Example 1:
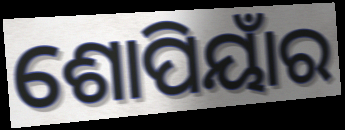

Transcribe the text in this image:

ଶୋପିୟାଁର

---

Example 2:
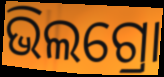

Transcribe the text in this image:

ଭିଲଗ୍ରୋ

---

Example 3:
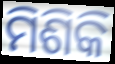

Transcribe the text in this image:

ମିଶିକି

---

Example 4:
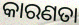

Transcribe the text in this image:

କାରଣତା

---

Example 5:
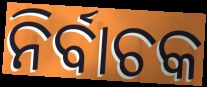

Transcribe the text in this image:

ନିର୍ବାଚକ